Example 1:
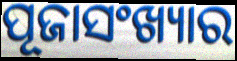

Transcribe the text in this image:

ପୂଜାସଂଖ୍ୟାର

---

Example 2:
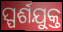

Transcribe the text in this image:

ସ୍ପର୍ଶଯୁକ୍ତ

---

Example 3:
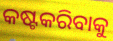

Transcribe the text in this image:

କଷ୍ଟକରିବାକୁ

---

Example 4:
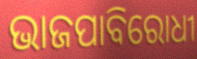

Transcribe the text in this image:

ଭାଜପାବିରୋଧୀ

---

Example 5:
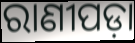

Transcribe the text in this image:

ରାଣୀପଡ଼ା